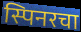
स्पिनरचा